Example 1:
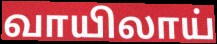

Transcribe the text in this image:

வாயிலாய்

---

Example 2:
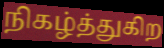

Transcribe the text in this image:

நிகழ்த்துகிற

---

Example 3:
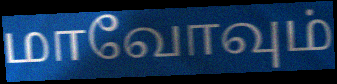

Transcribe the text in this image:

மாவோவும்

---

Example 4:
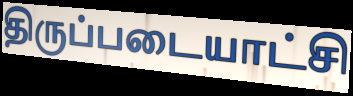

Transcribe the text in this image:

திருப்படையாட்சி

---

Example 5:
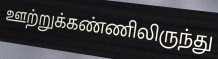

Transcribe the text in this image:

ஊற்றுக்கண்ணிலிருந்து